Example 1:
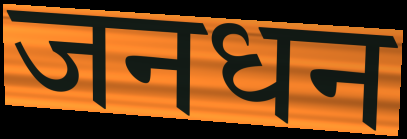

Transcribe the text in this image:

जनधन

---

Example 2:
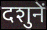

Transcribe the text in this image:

दशुनें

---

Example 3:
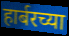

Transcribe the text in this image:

हार्बरच्या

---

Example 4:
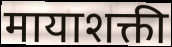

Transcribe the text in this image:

मायाशक्ती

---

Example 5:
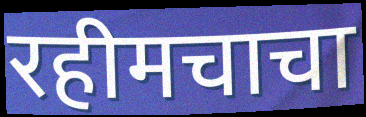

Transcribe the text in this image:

रहीमचाचा